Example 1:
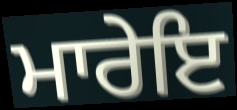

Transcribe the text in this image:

ਮਾਰੇਇ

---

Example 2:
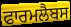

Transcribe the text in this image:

ਫਾਰਮਲੈਬਸ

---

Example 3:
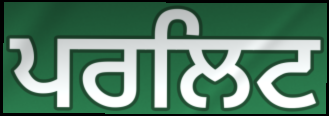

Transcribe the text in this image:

ਪਰਲਿਟ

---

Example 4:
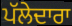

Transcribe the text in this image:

ਪੱਲੇਦਾਰਾ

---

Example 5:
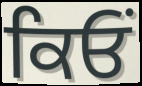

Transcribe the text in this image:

ਕਿਓਂ